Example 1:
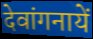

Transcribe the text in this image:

देवांगनायें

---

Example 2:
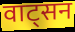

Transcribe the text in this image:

वाट्सन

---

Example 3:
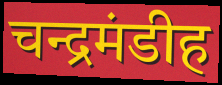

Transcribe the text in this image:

चन्द्रमंडीह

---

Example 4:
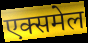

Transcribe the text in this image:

एक्समेल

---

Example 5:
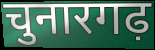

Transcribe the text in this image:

चुनारगढ़